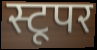
स्टूपर